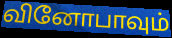
வினோபாவும்